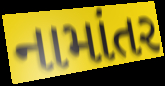
નામાંતર